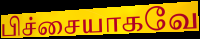
பிச்சையாகவே